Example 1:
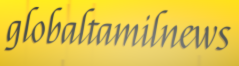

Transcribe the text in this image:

globaltamilnews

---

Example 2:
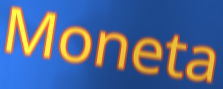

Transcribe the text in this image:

Moneta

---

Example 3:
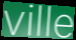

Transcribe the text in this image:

ville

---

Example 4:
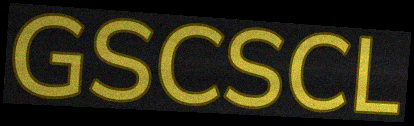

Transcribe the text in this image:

GSCSCL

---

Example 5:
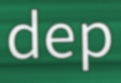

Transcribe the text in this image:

dep